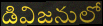
డివిజనులో